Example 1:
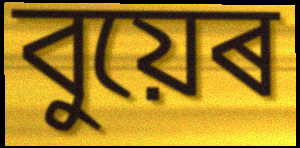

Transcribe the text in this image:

বুয়েৰ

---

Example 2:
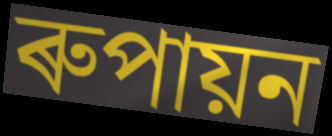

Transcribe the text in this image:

ৰুপায়ন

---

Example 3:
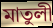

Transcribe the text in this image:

মাতুলী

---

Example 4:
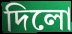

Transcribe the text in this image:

দিলো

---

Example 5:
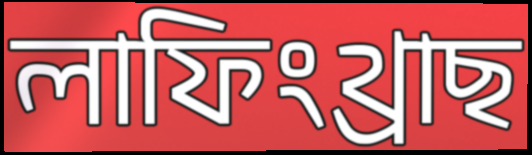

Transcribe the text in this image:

লাফিংথ্ৰাছ